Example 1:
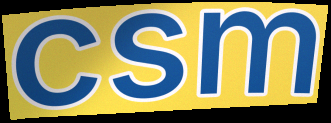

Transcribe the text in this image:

csm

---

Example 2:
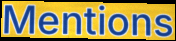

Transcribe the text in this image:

Mentions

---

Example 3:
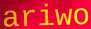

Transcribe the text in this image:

ariwo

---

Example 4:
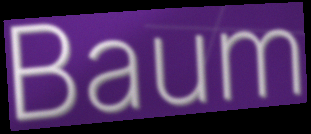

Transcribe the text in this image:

Baum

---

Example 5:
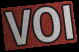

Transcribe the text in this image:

VOI